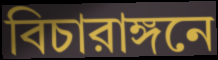
বিচারাঙ্গনে